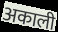
अकाली